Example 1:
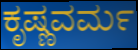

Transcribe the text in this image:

ಕೃಷ್ಣವರ್ಮ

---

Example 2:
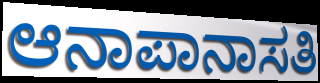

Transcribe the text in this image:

ಆನಾಪಾನಾಸತಿ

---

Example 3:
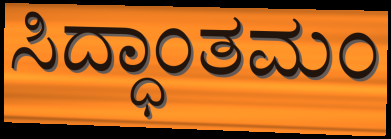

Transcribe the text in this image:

ಸಿದ್ಧಾಂತಮಂ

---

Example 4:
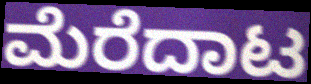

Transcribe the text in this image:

ಮೆರೆದಾಟ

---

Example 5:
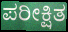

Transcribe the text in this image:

ಪರೀಕ್ಷಿತ